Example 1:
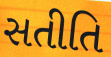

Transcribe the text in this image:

સતીતિ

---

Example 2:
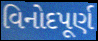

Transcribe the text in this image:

વિનોદપૂર્ણ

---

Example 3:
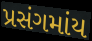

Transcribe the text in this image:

પ્રસંગમાંય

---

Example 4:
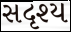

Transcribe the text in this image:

સદૃશ્ય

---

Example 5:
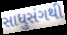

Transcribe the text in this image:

સાધુસંગથી